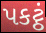
પકટ્ઠં